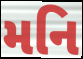
મનિ